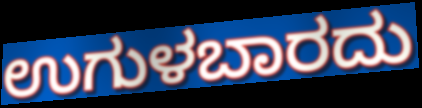
ಉಗುಳಬಾರದು